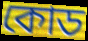
কোড